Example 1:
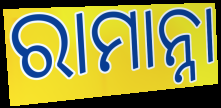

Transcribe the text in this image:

ରାମାନ୍ନା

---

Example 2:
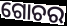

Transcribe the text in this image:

ଗୋଚର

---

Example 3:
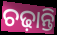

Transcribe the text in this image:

ଚଢ଼ାନ୍ତି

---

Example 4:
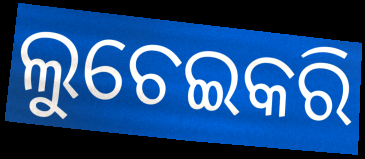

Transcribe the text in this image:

ଲୁଚେଇକରି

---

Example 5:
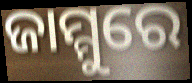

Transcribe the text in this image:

ଜାମ୍ମୁରେ